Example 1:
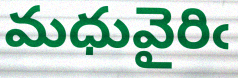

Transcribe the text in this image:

మధువైరిఁ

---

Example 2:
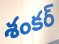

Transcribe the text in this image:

శంకర్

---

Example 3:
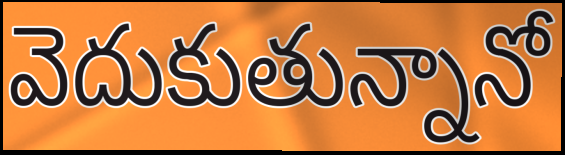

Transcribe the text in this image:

వెదుకుతున్నానో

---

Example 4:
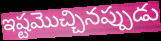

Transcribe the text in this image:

ఇష్టమొచ్చినప్పుడు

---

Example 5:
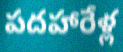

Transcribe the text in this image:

పదహారేళ్ల